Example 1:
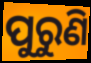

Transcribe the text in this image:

ପୁରୁଣି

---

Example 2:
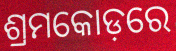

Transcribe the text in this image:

ଶ୍ରମକୋଡ଼ରେ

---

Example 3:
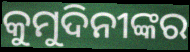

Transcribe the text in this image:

କୁମୁଦିନୀଙ୍କର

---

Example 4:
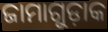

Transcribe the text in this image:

ଜାମାଗୁଡ଼ାକ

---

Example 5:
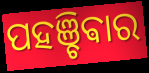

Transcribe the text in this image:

ପହଞ୍ଚିଵାର